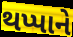
થપ્પાને